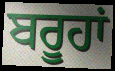
ਬਰੂਹਾਂ